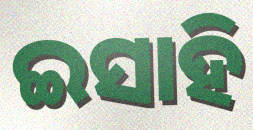
ଇସାହି